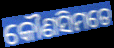
କୌଣସିମତେ